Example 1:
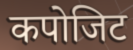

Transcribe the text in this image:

कपोजिट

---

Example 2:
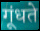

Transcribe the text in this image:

गूंधते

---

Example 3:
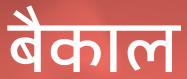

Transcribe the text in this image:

बैकाल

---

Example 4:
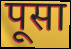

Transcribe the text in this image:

पूसा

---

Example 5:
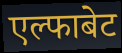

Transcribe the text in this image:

एल्फाबेट